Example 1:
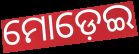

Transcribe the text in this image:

ମୋଡ଼େଇ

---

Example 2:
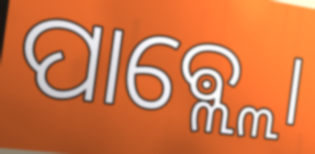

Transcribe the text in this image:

ପାଵ୍ଲ୍ଲୋ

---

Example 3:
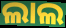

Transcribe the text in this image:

ଲାଲ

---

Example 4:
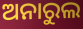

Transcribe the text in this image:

ଅନାରୁଲ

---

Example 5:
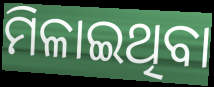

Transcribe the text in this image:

ମିଳାଇଥିବା